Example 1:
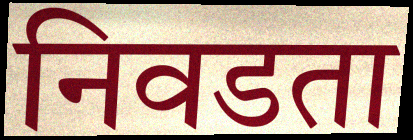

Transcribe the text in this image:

निवडता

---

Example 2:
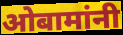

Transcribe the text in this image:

ओबामांनी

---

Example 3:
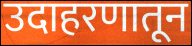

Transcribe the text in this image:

उदाहरणातून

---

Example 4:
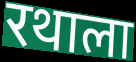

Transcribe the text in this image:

रथाला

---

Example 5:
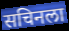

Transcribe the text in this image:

सचिनला